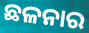
ଛଳନାର